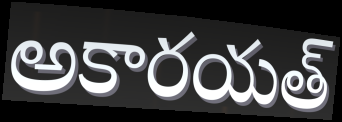
అకారయత్